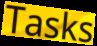
Tasks